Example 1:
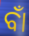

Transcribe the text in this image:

ବାଁ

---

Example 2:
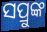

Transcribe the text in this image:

ସପ୍ରୁଙ୍କ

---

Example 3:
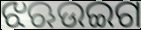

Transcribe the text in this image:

ଝଋଉଇଗ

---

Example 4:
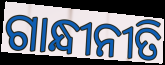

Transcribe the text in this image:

ଗାନ୍ଧୀନୀତି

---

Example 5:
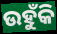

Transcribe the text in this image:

ଉହୁଁକି